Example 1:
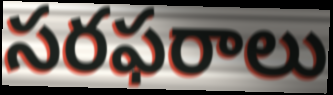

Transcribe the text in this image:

సరఫరాలు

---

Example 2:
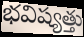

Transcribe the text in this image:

భవిష్యత్తు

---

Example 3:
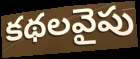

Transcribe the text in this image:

కథలవైపు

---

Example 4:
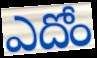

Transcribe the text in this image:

ఎదోం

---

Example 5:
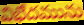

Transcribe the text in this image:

విభేదమును